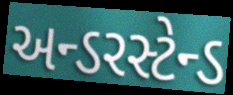
અન્ડરસ્ટેન્ડ